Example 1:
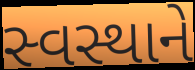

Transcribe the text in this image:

સ્વસ્થાને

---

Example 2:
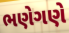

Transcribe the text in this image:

ભણેગણે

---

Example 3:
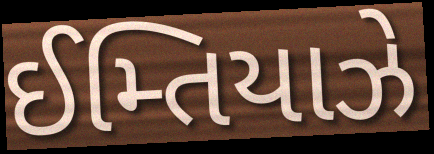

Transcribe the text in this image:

ઈમ્તિયાઝે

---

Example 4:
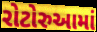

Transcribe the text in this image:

રોટોરુઆમાં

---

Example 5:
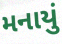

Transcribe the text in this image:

મનાયું